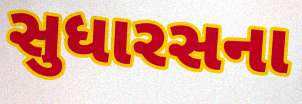
સુધારસના